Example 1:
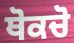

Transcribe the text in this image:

ਥੋਕਚੋ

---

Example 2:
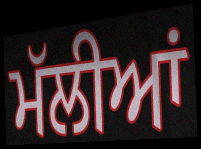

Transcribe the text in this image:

ਮੱਲੀਆਂ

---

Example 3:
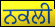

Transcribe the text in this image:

ਨਕਲੀ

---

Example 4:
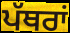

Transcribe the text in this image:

ਪੱਥਰਾਂ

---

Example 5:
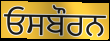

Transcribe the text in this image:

ਓਸਬੌਰਨ